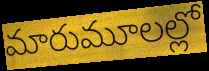
మారుమూలల్లో